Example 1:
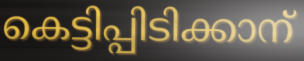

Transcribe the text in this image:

കെട്ടിപ്പിടിക്കാന്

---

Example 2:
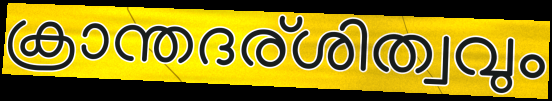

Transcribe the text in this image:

ക്രാന്തദര്ശിത്വവും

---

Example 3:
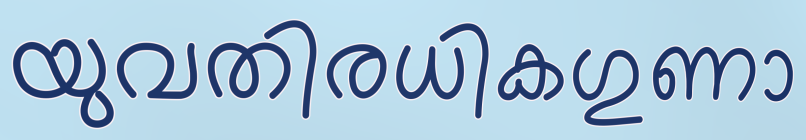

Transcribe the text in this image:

യുവതിരധികഗുണാ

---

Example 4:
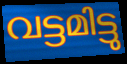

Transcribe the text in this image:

വട്ടമിട്ടു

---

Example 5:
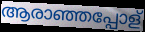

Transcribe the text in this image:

ആരാഞ്ഞപ്പോള്